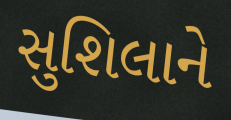
સુશિલાને